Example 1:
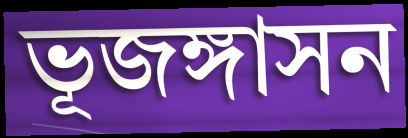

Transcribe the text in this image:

ভূজঙ্গাসন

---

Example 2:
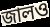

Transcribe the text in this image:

জালও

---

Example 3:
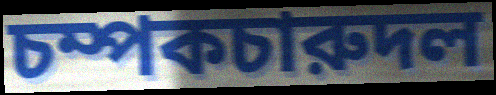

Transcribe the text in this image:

চম্পকচারুদল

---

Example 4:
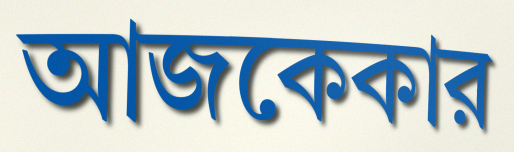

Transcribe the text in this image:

আজকেকার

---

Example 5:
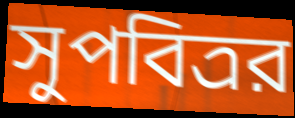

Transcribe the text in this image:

সুপবিত্রর